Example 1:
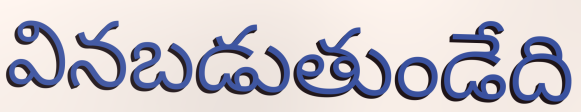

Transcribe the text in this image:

వినబడుతుండేది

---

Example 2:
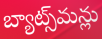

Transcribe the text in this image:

బ్యాట్స్‌మన్లు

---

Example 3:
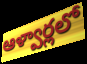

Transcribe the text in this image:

ఆళ్వార్లలో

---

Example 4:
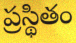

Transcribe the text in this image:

ప్రస్థితం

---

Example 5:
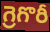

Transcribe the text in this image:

గ్రెగొరీ